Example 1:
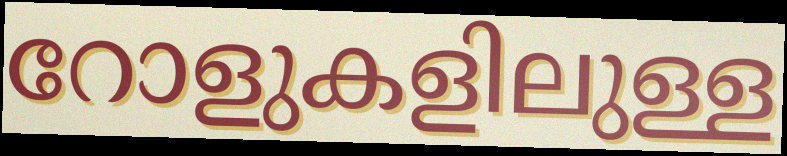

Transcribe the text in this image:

റോളുകളിലുള്ള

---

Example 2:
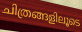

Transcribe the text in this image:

ചിത്രങ്ങളിലൂടെ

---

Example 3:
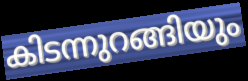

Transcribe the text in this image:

കിടന്നുറങ്ങിയും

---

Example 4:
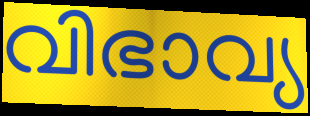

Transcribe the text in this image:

വിഭാവ്യ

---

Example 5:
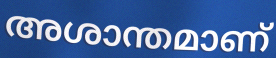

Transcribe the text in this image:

അശാന്തമാണ്